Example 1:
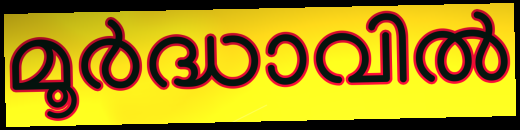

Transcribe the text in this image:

മൂർദ്ധാവിൽ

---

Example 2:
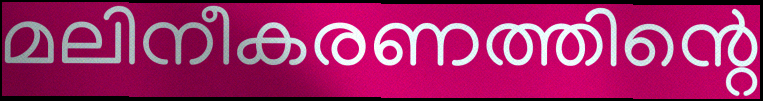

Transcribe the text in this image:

മലിനീകരണത്തിന്റെ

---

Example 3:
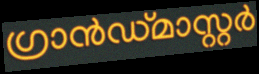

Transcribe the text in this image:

ഗ്രാൻഡ്മാസ്റ്റർ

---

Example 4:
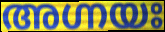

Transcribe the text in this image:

അഗ്നയഃ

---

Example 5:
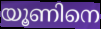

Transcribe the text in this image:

യൂണിനെ